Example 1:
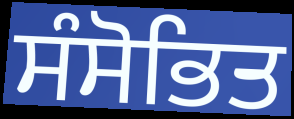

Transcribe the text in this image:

ਸੰਸੋਭਿਤ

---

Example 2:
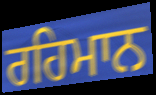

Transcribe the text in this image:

ਰਹਿਮਾਨ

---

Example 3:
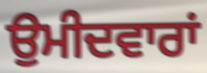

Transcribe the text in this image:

ਉਮੀਦਵਾਰਾਂ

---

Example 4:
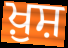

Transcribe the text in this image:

ਖ਼ੁਸ਼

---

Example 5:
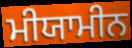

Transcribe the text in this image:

ਮੀਯਾਮੀਨ